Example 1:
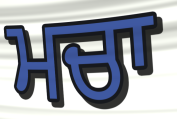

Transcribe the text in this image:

ਮਚਾ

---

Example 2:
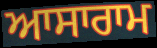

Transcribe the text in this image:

ਆਸਾਰਾਮ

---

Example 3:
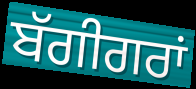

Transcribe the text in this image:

ਬੱਗੀਗਰਾਂ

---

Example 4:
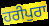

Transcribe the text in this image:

ਹਰੀਪੁਰਾ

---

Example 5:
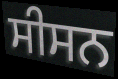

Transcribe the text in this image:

ਸੀਸਨ